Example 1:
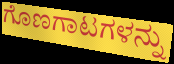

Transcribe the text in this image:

ಗೊಣಗಾಟಗಳನ್ನು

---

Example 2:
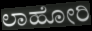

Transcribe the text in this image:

ಲಾಹೋರಿ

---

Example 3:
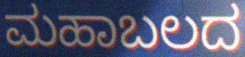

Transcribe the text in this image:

ಮಹಾಬಲದ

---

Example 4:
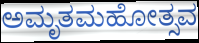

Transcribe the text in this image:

ಅಮೃತಮಹೋತ್ಸವ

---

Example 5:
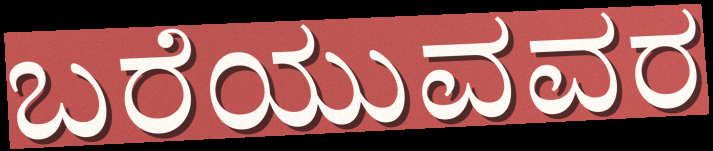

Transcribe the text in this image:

ಬರೆಯುವವರ